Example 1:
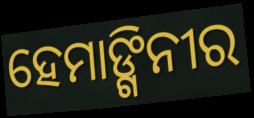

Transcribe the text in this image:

ହେମାଙ୍ଗିନୀର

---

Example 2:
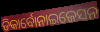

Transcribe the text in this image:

ଡିକାର୍ବୋନାଇଜେସନ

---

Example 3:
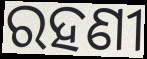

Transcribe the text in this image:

ରହଣୀ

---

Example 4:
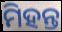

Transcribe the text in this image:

ମିହନ୍ତ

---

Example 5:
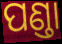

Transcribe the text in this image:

ପଣ୍ଡା